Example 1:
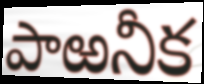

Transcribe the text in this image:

పాఱనీక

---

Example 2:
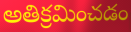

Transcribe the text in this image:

అతిక్రమించడం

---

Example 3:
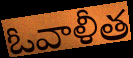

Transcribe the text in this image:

ఓవాళీత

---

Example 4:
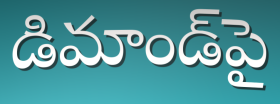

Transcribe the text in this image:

డిమాండ్‌పై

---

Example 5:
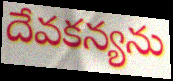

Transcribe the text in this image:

దేవకన్యను